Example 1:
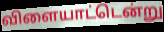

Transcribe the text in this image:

விளையாட்டென்று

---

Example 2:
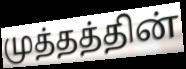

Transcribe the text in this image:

முத்தத்தின்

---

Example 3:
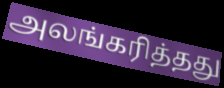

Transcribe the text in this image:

அலங்கரித்தது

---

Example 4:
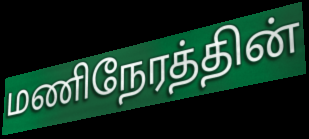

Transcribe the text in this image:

மணிநேரத்தின்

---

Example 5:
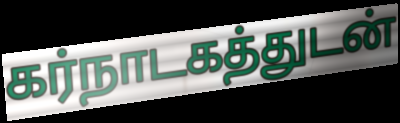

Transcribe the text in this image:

கர்நாடகத்துடன்